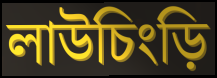
লাউচিংড়ি